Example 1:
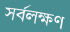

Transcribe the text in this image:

সর্বলক্ষণ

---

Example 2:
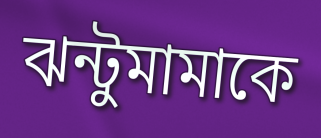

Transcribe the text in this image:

ঝন্টুমামাকে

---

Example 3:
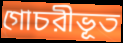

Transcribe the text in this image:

গোচরীভূত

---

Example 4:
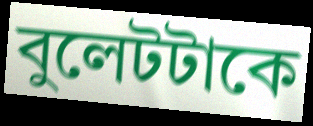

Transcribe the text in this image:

বুলেটটাকে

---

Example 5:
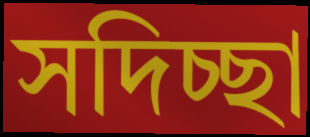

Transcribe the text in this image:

সদিচ্ছা